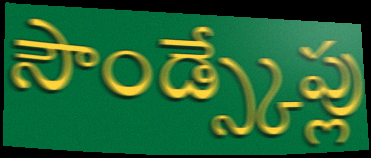
సౌండ్స్కేప్లు